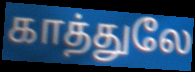
காத்துலே